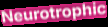
Neurotrophic